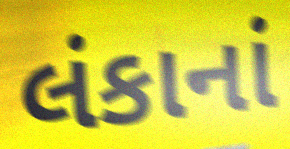
લંકાનાં